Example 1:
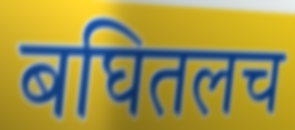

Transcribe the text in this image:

बघितलच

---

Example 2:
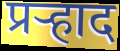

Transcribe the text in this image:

प्रर्‍हाद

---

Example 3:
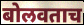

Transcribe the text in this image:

बोलवताच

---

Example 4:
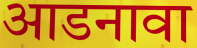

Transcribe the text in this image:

आडनावा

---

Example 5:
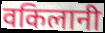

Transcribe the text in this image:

वकिलानी